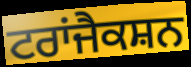
ਟਰਾਂਜੈਕਸ਼ਨ